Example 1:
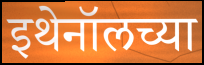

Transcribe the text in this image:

इथेनॉलच्या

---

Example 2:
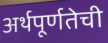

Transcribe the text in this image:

अर्थपूर्णतेची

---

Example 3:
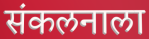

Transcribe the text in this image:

संकलनाला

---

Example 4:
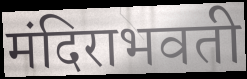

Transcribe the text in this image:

मंदिराभवती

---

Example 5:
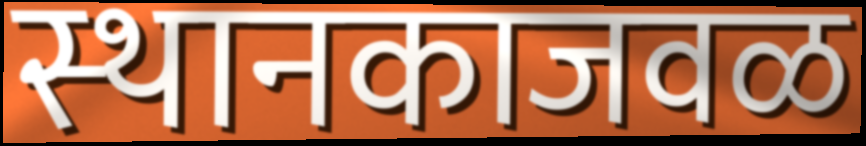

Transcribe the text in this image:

स्थानकाजवळ